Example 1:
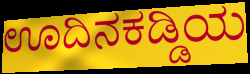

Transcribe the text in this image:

ಊದಿನಕಡ್ಡಿಯ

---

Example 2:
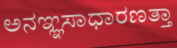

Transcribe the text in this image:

ಅನಞ್ಞಸಾಧಾರಣತ್ತಾ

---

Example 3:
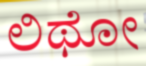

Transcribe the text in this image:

ಲಿಥೋ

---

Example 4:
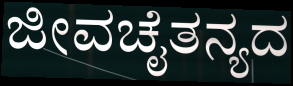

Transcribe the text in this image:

ಜೀವಚೈತನ್ಯದ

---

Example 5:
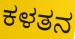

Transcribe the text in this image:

ಕಳತನ